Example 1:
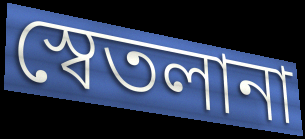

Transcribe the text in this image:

স্বেতলানা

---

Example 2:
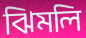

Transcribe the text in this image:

ঝিমলি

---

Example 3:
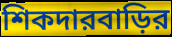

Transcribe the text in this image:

শিকদারবাড়ির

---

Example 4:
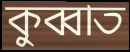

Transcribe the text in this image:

কুব্বাত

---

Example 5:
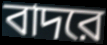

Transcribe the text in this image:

বাদরে